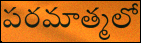
పరమాత్మలో